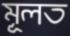
মূলত